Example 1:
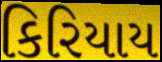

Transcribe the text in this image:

કિરિયાય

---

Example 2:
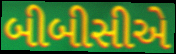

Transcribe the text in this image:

બીબીસીએ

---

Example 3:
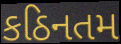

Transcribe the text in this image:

કઠિનતમ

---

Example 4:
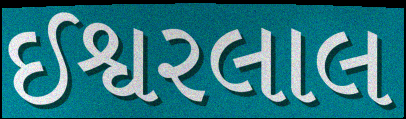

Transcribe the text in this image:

ઈશ્વરલાલ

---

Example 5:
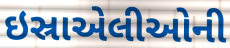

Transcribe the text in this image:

ઇસ્રાએલીઓની